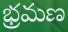
భ్రమణ